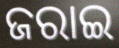
ଜରାଇ